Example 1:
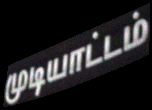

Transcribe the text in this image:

முடியாட்டம்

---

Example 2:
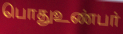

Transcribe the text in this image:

பொதுஉண்பர்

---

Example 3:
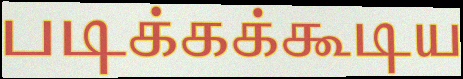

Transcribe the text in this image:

படிக்கக்கூடிய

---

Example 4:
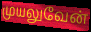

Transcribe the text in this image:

முயலுவேன்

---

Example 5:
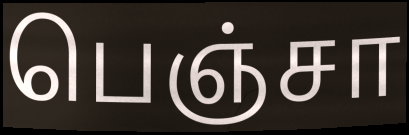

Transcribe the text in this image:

பெஞ்சா